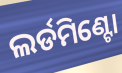
ଲର୍ଡମିଣ୍ଟୋ